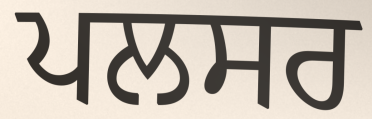
ਪਲਸਰ